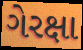
ગેરક્ષા